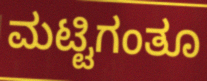
ಮಟ್ಟಿಗಂತೂ